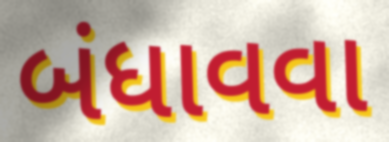
બંધાવવા